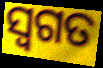
ସ୍ଵଗତ